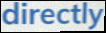
directly